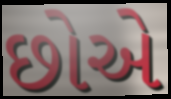
છોએ